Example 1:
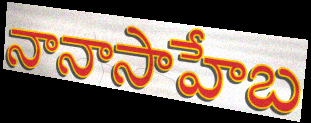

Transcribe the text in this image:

నానాసాహేబ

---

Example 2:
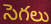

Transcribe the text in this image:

సెగలు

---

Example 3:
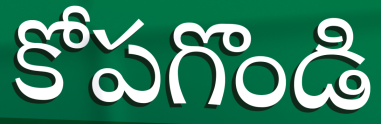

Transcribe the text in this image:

కోపగొండి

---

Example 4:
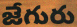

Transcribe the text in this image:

జేగురు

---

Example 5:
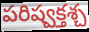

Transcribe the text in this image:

పరిష్వక్తశ్చ